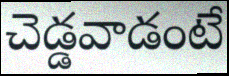
చెడ్డవాడంటే